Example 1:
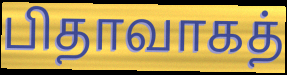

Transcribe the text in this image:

பிதாவாகத்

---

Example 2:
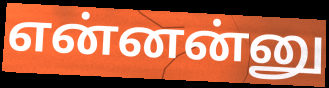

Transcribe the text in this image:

என்னன்னு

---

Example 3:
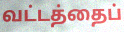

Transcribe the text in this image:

வட்டத்தைப்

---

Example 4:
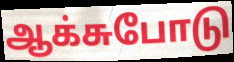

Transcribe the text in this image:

ஆக்சுபோடு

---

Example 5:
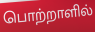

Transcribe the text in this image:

பொற்றாளில்